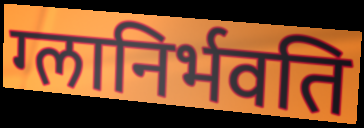
ग्लानिर्भवति